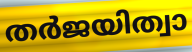
തർജയിത്വാ